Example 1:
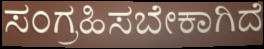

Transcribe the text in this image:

ಸಂಗ್ರಹಿಸಬೇಕಾಗಿದೆ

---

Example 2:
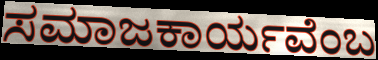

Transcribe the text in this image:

ಸಮಾಜಕಾರ್ಯವೆಂಬ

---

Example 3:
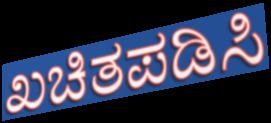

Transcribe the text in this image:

ಖಚಿತಪಡಿಸಿ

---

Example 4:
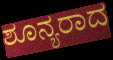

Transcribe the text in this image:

ಶೂನ್ಯರಾದ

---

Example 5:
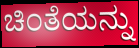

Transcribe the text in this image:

ಚಿಂತೆಯನ್ನು